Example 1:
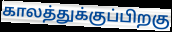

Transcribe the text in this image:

காலத்துக்குப்பிறகு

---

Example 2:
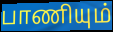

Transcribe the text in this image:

பாணியும்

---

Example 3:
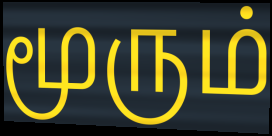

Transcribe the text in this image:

மூரும்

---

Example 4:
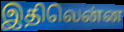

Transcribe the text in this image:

இதிலென்ன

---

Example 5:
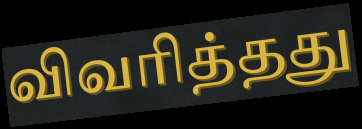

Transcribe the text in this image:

விவரித்தது